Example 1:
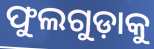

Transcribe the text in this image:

ଫୁଲଗୁଡ଼ାକୁ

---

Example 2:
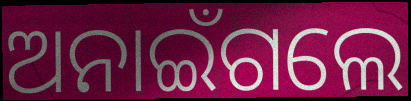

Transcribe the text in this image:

ଅନାଇଁଗଲେ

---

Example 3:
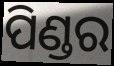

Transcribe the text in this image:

ପିଣ୍ଡର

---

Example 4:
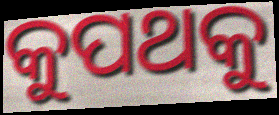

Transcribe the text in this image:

କୁପଥକୁ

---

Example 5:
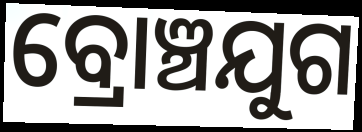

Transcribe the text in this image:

ବ୍ରୋଞ୍ଚଯୁଗ